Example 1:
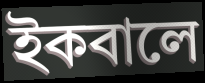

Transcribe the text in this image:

ইকবালে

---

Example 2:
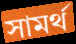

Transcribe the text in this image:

সামৰ্থ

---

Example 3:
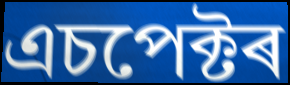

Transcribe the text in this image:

এচপেক্টৰ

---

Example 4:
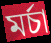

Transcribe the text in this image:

মৰ্চা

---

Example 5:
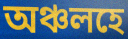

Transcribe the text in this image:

অঞ্চলহে